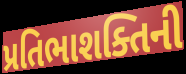
પ્રતિભાશક્તિની